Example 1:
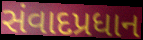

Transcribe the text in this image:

સંવાદપ્રધાન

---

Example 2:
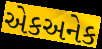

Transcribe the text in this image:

એકઅનેક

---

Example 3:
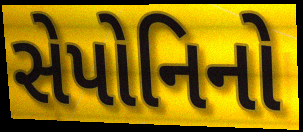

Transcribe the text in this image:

સેપોનિનો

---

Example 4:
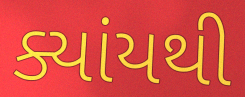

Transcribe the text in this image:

ક્યાંયથી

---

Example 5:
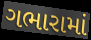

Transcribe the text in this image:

ગભારામાં